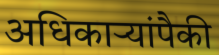
अधिकार्‍यांपैकी